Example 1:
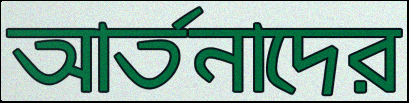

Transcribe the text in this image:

আর্তনাদের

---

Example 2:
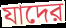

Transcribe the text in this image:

যাদের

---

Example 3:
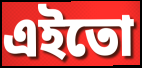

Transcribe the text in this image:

এইতো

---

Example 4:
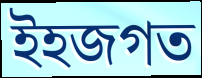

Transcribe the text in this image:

ইহজগত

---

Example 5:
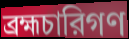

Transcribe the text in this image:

ব্রহ্মচারিগণ